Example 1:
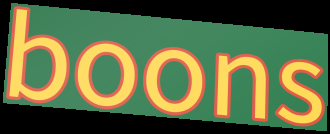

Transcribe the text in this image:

boons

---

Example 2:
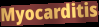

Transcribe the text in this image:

Myocarditis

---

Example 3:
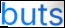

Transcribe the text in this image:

buts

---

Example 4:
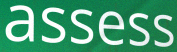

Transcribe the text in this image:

assess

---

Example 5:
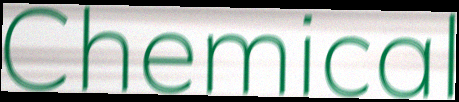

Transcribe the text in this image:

Chemical